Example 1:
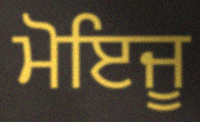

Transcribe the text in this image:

ਮੋਇਜੂ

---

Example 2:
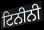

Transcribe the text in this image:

ਟਿਨੀਨੀ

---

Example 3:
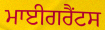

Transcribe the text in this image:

ਮਾਈਗਰੈਂਟਸ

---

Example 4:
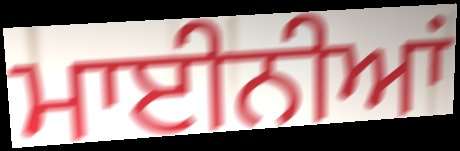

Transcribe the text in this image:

ਮਾਈਨੀਆਂ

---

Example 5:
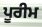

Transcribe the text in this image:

ਪੂਰੀਮ